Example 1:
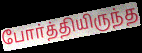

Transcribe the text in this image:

போர்த்தியிருந்த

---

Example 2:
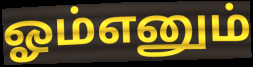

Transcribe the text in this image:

ஓம்எனும்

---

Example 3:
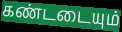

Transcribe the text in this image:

கண்டடையும்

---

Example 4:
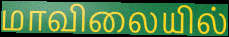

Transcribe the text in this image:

மாவிலையில்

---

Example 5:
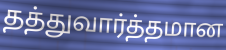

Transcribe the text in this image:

தத்துவார்த்தமான